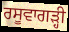
ਰਸੂਵਾਗੜ੍ਹੀ